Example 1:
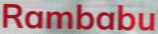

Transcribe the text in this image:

Rambabu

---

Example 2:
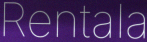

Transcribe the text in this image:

Rentala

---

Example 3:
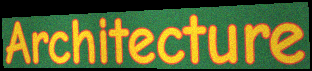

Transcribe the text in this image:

Architecture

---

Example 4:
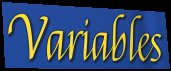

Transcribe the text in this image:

Variables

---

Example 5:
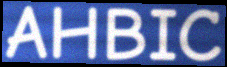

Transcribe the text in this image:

AHBIC